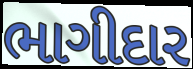
ભાગીદાર